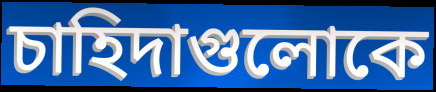
চাহিদাগুলোকে